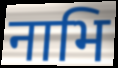
नाभि